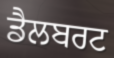
ਡੈਲਬਰਟ